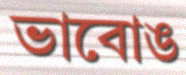
ভাবোঙ